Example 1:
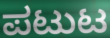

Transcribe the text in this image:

ಪಟುಟ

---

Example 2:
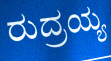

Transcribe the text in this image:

ರುದ್ರಯ್ಯ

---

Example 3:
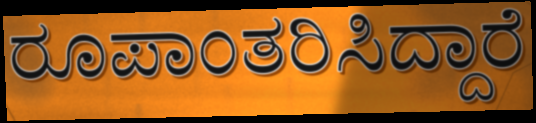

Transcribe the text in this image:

ರೂಪಾಂತರಿಸಿದ್ದಾರೆ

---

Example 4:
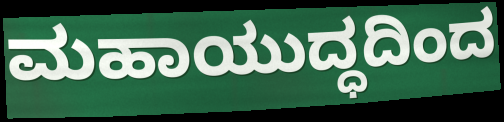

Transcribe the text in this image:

ಮಹಾಯುದ್ಧದಿಂದ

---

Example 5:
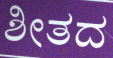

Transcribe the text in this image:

ಶೀತದ